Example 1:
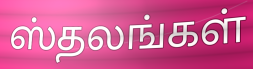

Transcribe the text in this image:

ஸ்தலங்கள்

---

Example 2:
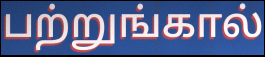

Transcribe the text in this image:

பற்றுங்கால்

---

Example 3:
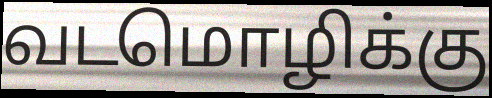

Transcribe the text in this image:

வடமொழிக்கு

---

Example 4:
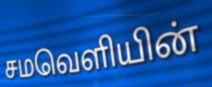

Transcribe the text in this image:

சமவெளியின்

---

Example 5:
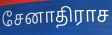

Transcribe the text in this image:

சேனாதிராச